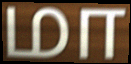
மா